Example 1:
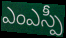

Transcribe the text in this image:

ఎంఎస్పీ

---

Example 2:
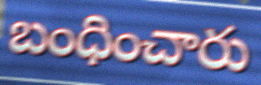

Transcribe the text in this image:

బంధించారు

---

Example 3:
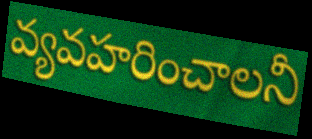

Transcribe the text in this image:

వ్యవహరించాలనీ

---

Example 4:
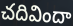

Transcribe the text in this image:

చదివిందా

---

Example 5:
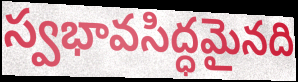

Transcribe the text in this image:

స్వభావసిద్ధమైనది